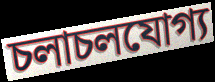
চলাচলযোগ্য